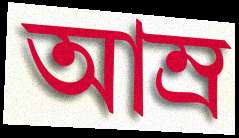
আম্র